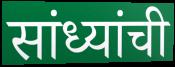
सांध्यांची